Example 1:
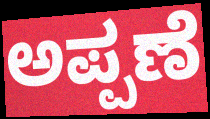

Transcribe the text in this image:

ಅಪ್ಪಣೆ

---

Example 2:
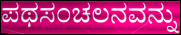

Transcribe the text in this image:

ಪಥಸಂಚಲನವನ್ನು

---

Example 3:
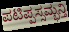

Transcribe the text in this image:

ಪಟಿಪ್ಪಸ್ಸಮ್ಭನ್ತಿ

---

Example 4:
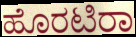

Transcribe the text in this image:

ಹೊರಟಿರಾ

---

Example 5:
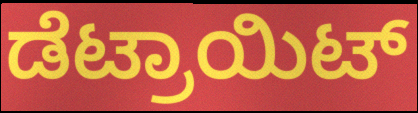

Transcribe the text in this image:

ಡೆಟ್ರಾಯಿಟ್